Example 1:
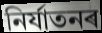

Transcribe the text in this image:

নিৰ্যাতনৰ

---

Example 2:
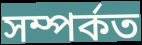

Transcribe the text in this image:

সম্পৰ্কত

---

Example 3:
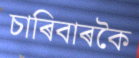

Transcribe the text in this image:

চাৰিবাৰকৈ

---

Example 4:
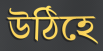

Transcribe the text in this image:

উঠিহে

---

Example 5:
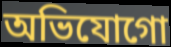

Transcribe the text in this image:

অভিযোগো